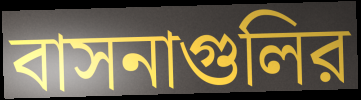
বাসনাগুলির